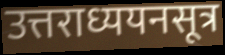
उत्तराध्ययनसूत्र